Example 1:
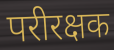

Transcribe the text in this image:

परीरक्षक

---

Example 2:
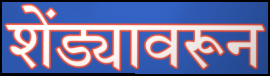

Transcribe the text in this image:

शेंड्यावरून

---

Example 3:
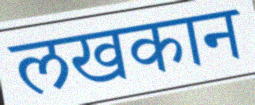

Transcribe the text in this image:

लखकान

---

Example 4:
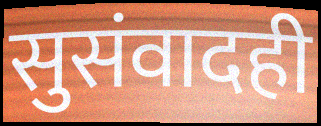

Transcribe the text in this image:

सुसंवादही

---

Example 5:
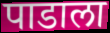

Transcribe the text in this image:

पाडाला